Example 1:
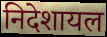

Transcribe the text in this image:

निदेशायल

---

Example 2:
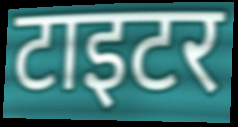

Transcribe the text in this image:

टाइटर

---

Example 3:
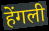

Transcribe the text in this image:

हेंगली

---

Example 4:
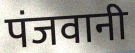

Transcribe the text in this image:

पंजवानी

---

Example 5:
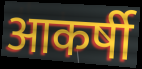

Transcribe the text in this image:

आकर्षी